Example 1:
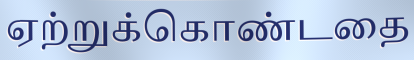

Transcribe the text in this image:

ஏற்றுக்கொண்டதை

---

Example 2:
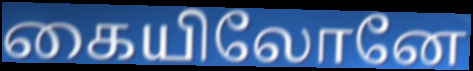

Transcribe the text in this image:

கையிலோனே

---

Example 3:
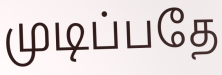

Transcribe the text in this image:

முடிப்பதே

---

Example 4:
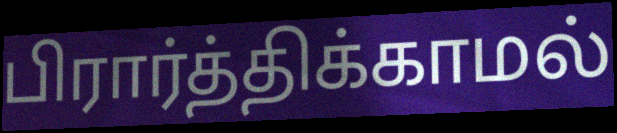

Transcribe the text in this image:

பிரார்த்திக்காமல்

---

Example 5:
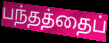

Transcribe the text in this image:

பந்தத்தைப்